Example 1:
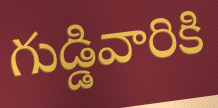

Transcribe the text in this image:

గుడ్డివారికి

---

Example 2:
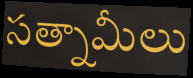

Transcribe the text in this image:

సత్నామీలు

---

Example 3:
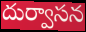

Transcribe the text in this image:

దుర్వాసన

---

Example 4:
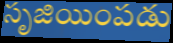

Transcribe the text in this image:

సృజియింపడు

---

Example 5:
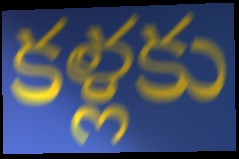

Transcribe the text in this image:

కళ్లకు